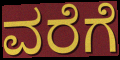
ವರೆಗೆ